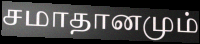
சமாதானமும்